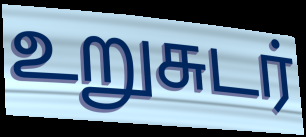
உறுசுடர்